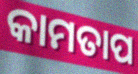
କାମତାପ